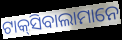
ଟାକ୍‌ସିବାଲାମାନେ